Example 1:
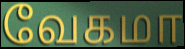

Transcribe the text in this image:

வேகமா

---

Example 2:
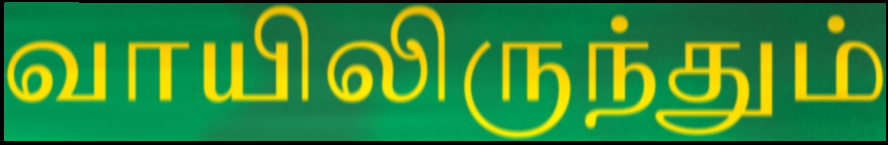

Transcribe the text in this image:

வாயிலிருந்தும்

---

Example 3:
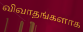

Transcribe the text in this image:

விவாதங்களாக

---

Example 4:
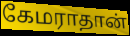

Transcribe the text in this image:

கேமராதான்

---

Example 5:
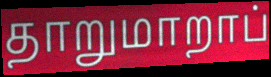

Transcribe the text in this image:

தாறுமாறாப்